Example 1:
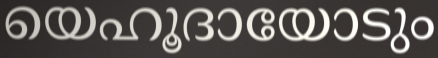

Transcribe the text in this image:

യെഹൂദായോടും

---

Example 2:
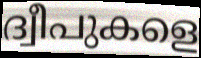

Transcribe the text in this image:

ദ്വീപുകളെ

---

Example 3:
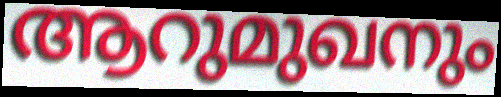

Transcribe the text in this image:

ആറുമുഖനും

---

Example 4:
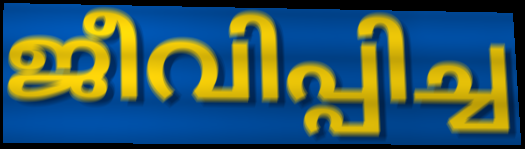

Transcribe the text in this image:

ജീവിപ്പിച്ച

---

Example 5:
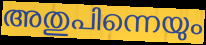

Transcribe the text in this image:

അതുപിന്നെയും